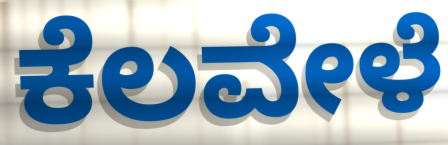
ಕೆಲವೇಳೆ